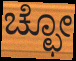
ಚ್ಛೋ